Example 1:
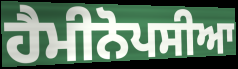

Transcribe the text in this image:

ਹੈਮੀਨੋਪਸੀਆ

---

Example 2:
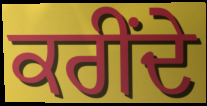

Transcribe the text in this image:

ਕਰੀਂਦੇ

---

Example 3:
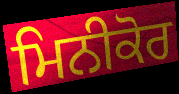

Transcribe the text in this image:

ਮਿਨੀਕੋਰ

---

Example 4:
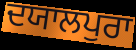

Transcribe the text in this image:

ਦਯਾਲਪੁਰਾ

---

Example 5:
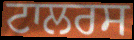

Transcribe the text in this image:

ਟਾਲਰਸ